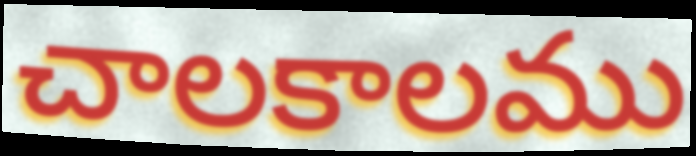
చాలకాలము